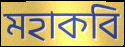
মহাকবি